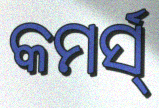
କମର୍ସ୍